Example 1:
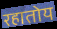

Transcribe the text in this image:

रहातोय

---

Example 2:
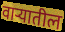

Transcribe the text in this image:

वाऱ्यातील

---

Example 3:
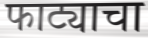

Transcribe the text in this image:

फाट्याचा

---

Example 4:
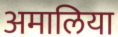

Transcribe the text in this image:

अमालिया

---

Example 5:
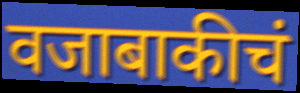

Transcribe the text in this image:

वजाबाकीचं